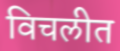
विचलीत